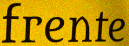
frente